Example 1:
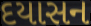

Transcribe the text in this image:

દયાસન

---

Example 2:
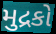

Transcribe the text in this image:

મુદ્રકો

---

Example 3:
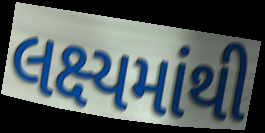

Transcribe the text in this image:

લક્ષ્યમાંથી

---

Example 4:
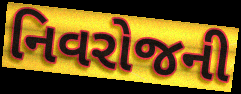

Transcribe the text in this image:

નિવરોજની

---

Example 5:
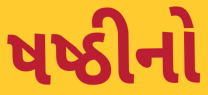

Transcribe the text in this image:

ષષ્ઠીનો